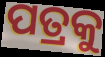
ପତ୍ରକୁ